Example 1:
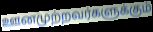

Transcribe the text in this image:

ஊனமுற்றவர்களுக்கும்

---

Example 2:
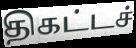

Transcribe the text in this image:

திகட்டச்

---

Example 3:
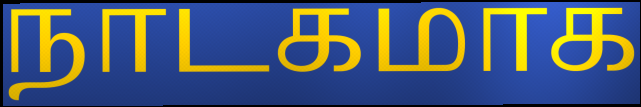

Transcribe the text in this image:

நாடகமாக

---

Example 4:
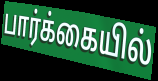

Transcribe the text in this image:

பார்க்கையில்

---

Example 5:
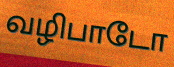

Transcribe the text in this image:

வழிபாடோ